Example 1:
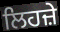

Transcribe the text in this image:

ਲਿਹਜ਼ੇ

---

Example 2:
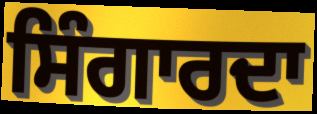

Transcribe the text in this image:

ਸਿੰਗਾਰਦਾ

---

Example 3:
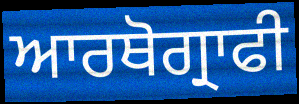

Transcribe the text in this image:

ਆਰਥੋਗ੍ਰਾਫੀ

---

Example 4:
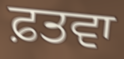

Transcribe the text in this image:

ਫ਼ਤਵਾ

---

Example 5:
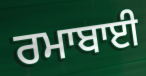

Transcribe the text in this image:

ਰਮਾਬਾਈ